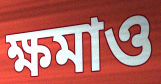
ক্ষমাও